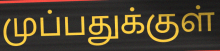
முப்பதுக்குள்